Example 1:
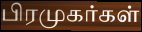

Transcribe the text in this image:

பிரமுகர்கள்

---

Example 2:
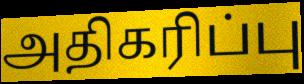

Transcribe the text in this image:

அதிகரிப்பு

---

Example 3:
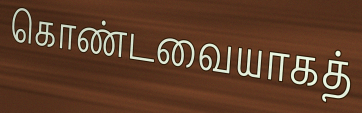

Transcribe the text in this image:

கொண்டவையாகத்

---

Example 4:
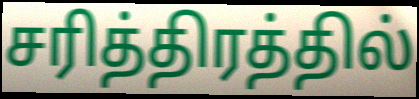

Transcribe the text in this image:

சரித்திரத்தில்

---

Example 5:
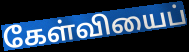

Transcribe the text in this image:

கேள்வியைப்